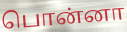
பொன்னா